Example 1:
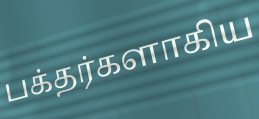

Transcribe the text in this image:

பக்தர்களாகிய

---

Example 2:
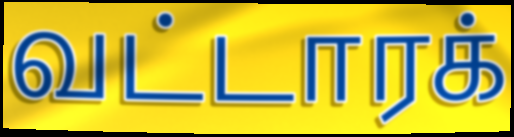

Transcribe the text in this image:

வட்டாரக்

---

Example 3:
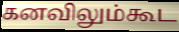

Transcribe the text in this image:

கனவிலும்கூட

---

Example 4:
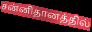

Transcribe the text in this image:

சன்னிதானத்தில்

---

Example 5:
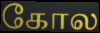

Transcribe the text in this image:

கோல